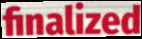
finalized